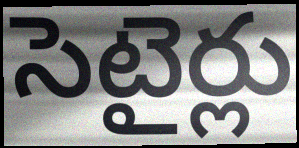
సెటైర్లు